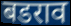
बडराव